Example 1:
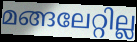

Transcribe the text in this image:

മങ്ങലേറ്റില്ല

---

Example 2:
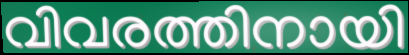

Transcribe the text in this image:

വിവരത്തിനായി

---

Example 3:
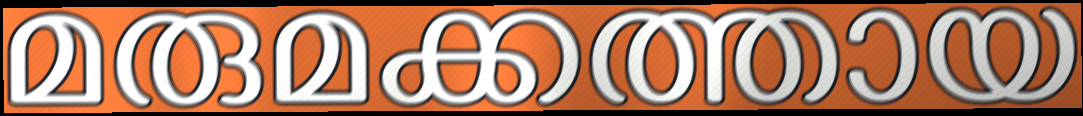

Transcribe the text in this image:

മരുമക്കത്തായ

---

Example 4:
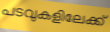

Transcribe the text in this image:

പടവുകളിലേക്ക്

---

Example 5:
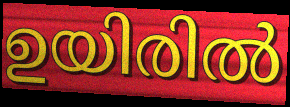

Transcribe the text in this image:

ഉയിരിൽ